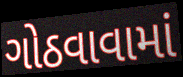
ગોઠવાવામાં